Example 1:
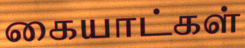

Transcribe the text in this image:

கையாட்கள்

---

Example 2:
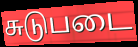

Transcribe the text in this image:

சுடுபடை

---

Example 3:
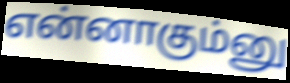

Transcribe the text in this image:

என்னாகும்னு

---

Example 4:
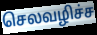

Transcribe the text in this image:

செலவழிச்ச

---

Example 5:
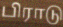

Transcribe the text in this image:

பிராடு